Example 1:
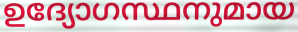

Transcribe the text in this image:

ഉദ്യോഗസ്ഥനുമായ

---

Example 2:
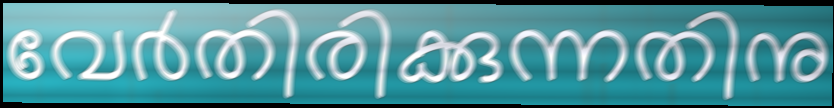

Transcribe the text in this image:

വേർതിരിക്കുന്നതിനു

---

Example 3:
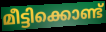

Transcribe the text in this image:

മീട്ടിക്കൊണ്ട്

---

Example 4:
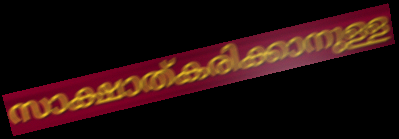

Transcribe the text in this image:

സാക്ഷാത്കരിക്കാനുള്ള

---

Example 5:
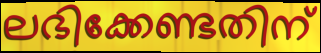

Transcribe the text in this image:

ലഭിക്കേണ്ടതിന്